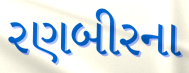
રણબીરના